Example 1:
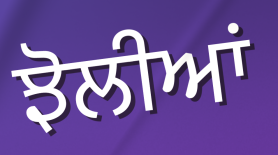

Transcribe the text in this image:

ਝੋਲੀਆਂ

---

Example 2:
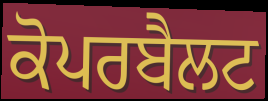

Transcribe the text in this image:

ਕੋਪਰਬੈਲਟ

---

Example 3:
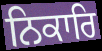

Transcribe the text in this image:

ਨਿਕਾਰਿ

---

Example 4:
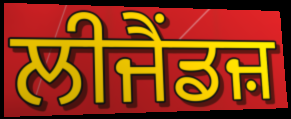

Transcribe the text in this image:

ਲੀਜੈਂਡਜ਼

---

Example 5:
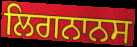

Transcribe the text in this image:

ਲਿਗਨਾਨਸ